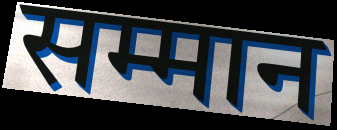
सम्‍मान